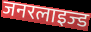
जनरलाइज्ड